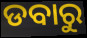
ଡବାରୁ